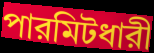
পারমিটধারী